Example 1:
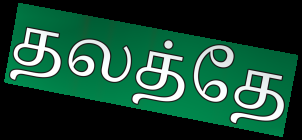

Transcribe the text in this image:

தலத்தே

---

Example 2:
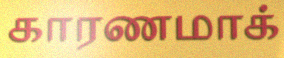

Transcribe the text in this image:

காரணமாக்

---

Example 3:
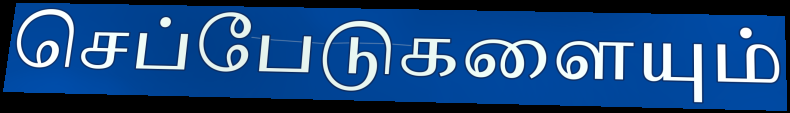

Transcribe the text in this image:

செப்பேடுகளையும்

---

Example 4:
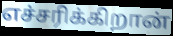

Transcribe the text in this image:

எச்சரிக்கிறான்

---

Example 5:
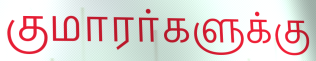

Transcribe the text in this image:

குமாரர்களுக்கு